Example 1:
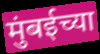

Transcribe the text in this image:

मुंबईच्या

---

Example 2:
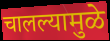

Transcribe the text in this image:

चालल्यामुळे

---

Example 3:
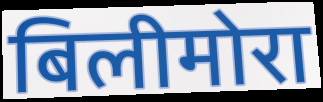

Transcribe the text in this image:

बिलीमोरा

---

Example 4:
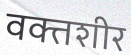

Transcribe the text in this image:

वक्तशीर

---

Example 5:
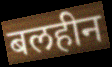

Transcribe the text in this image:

बलहीन